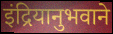
इंद्रियानुभवाने